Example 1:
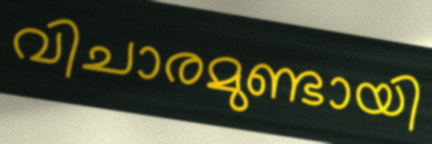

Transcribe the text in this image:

വിചാരമുണ്ടായി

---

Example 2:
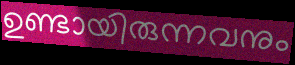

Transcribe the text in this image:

ഉണ്ടായിരുന്നവനും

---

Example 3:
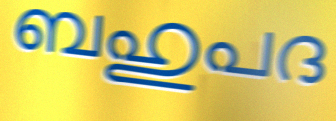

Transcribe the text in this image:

ബഹുപദ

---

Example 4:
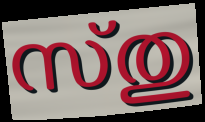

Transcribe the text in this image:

സ്‌തു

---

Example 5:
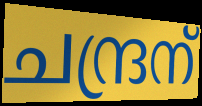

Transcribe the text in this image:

ചന്ദ്രന്